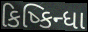
કિષ્કિન્ધા